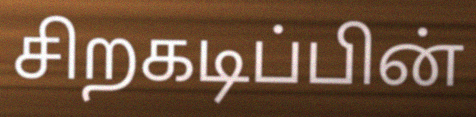
சிறகடிப்பின்